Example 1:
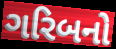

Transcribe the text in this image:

ગરિબનો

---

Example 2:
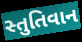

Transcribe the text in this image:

સ્તુતિવાન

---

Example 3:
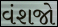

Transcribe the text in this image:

વંશજો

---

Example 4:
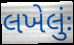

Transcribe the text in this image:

લખેલુંઃ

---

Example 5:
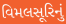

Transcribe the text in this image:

વિમલસૂરિનું